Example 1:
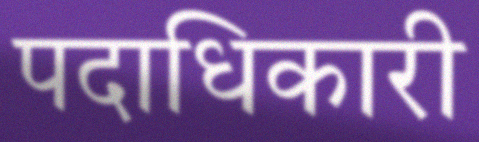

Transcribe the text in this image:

पदाधिकारी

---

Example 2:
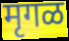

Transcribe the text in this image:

मृगळ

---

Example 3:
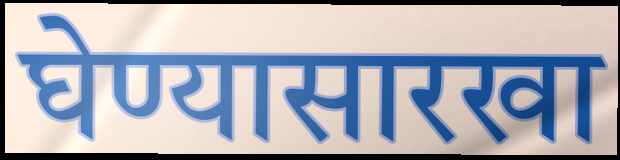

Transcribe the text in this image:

घेण्यासारखा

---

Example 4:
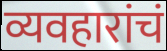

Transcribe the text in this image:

व्यवहारांचं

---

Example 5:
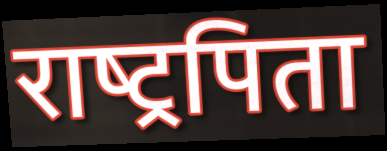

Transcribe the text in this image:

राष्ट्रपिता